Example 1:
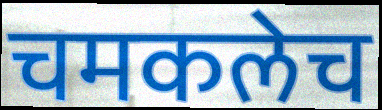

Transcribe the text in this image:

चमकलेच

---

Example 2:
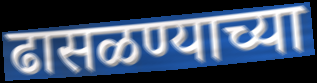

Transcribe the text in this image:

ढासळण्याच्या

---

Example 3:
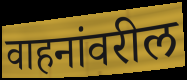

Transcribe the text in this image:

वाहनांवरील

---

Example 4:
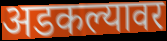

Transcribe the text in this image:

अडकल्यावर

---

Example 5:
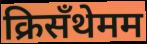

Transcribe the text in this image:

क्रिसँथेमम